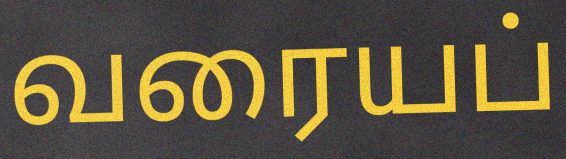
வரையப்